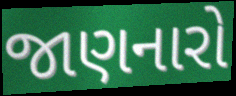
જાણનારો